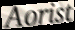
Aorist